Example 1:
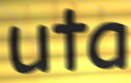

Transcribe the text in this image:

uta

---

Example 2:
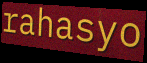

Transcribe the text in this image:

rahasyo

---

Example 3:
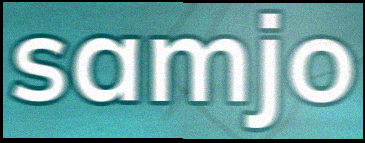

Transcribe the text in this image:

samjo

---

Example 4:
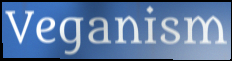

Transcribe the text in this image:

Veganism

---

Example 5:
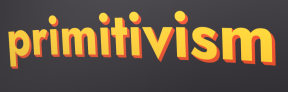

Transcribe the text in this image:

primitivism